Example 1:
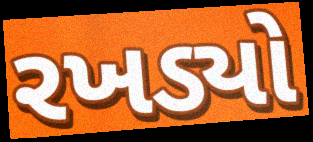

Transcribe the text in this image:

રખડ્યો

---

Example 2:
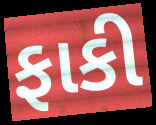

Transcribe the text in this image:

ફાકી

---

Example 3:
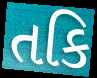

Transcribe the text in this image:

તકિ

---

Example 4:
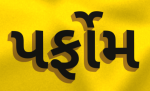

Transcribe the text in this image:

પર્ફોમ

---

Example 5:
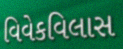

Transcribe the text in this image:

વિવેકવિલાસ